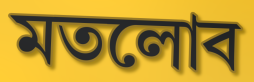
মতলোব